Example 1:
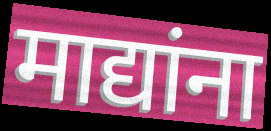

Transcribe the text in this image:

माद्यांना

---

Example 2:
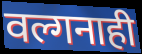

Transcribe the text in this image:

वल्गनाही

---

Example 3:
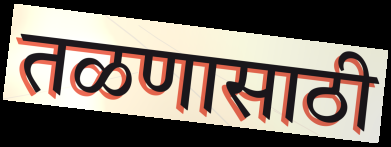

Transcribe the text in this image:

तळणासाठी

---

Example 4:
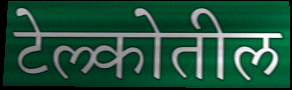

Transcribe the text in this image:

टेल्कोतील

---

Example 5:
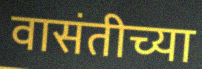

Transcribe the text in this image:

वासंतीच्या